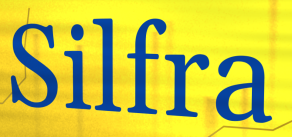
Silfra